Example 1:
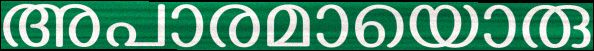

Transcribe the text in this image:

അപാരമായൊരു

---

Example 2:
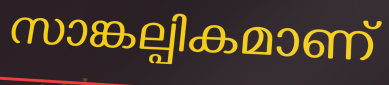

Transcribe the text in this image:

സാങ്കല്പികമാണ്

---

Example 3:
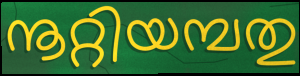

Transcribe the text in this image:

നൂറ്റിയമ്പതു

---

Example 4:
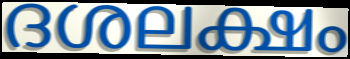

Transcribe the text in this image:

ദശലക്ഷം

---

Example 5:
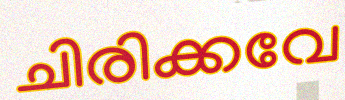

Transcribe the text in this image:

ചിരിക്കവേ